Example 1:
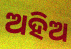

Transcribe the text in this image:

ଅହିଅ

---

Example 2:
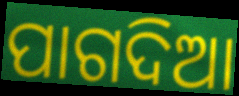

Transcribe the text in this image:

ପାଗଦିଆ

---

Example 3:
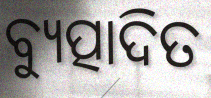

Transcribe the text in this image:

ବ୍ୟୁତ୍ପାଦିତ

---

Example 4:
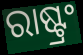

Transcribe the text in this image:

ରାଷ୍ଟ୍ରଂ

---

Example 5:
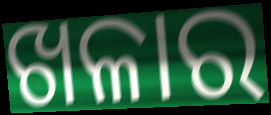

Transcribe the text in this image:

ଖଳାର